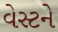
વેસ્ટને